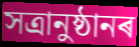
সত্ৰানুষ্ঠানৰ